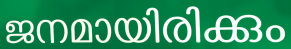
ജനമായിരിക്കും